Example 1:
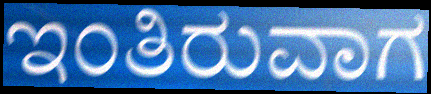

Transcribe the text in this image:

ಇಂತಿರುವಾಗ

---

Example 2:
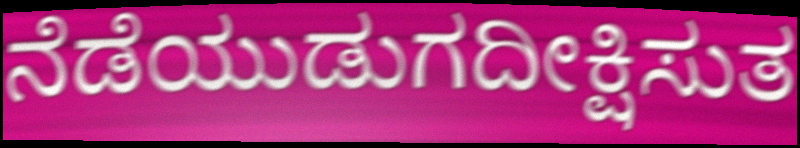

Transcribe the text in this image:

ನೆಡೆಯುಡುಗದೀಕ್ಷಿಸುತ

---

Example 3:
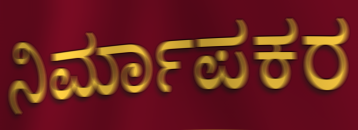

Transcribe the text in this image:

ನಿರ್ಮಾಪಕರ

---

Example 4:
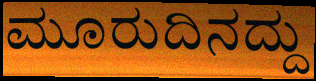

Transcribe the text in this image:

ಮೂರುದಿನದ್ದು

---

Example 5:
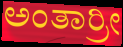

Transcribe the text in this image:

ಅಂತಾರ್ರೀ